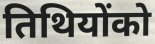
तिथियोंको